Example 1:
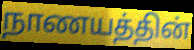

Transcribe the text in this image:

நாணயத்தின்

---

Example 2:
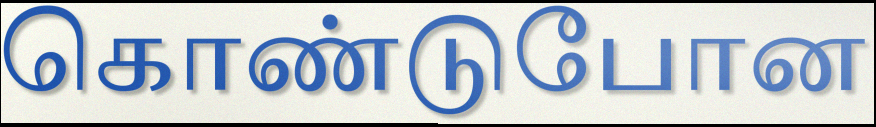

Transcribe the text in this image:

கொண்டுபோன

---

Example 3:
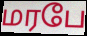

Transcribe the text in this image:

மரபே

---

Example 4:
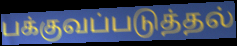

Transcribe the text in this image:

பக்குவப்படுத்தல்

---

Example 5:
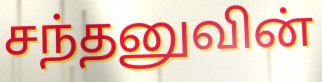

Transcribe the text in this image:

சந்தனுவின்